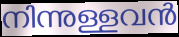
നിന്നുള്ളവൻ